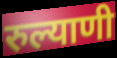
रुल्याणी